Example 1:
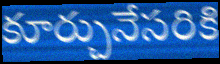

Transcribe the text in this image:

కూర్చునేసరికి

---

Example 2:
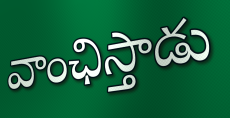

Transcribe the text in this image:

వాంఛిస్తాడు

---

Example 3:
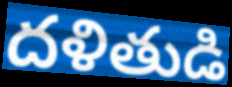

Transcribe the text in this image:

దళితుడి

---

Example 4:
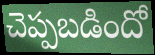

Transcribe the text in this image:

చెప్పబడిందో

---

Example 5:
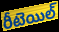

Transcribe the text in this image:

రీటెయిల్